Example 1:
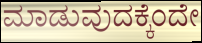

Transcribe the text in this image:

ಮಾಡುವುದಕ್ಕೆಂದೇ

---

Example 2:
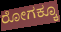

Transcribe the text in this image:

ರೋಗಕ್ಕೂ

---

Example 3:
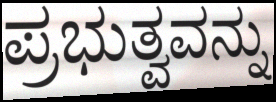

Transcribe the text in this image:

ಪ್ರಭುತ್ವವನ್ನು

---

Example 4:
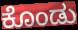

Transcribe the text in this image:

ಕೊಂಡು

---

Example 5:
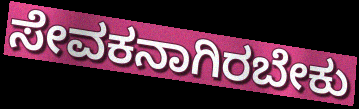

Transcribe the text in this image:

ಸೇವಕನಾಗಿರಬೇಕು